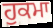
ਹੁਕਮਾ